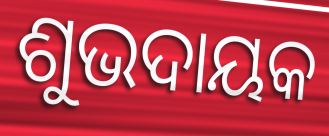
ଶୁଭଦାୟକ